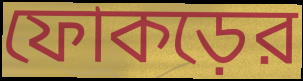
ফোকড়ের